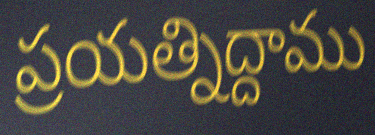
ప్రయత్నిద్దాము